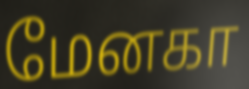
மேனகா